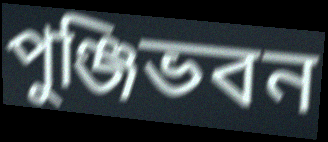
পুঞ্জিভবন